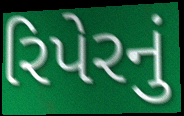
રિપેરનું